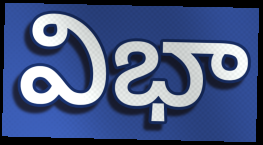
విభా